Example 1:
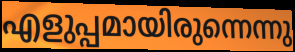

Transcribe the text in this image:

എളുപ്പമായിരുന്നെന്നു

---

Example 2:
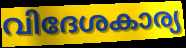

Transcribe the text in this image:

വിദേശകാര്യ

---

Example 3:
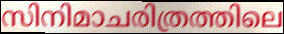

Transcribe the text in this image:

സിനിമാചരിത്രത്തിലെ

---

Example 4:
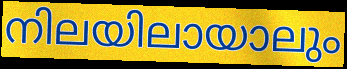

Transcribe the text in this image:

നിലയിലായാലും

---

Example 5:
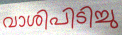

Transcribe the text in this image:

വാശിപിടിച്ചു